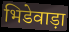
भिडेवाड़ा